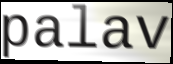
palav